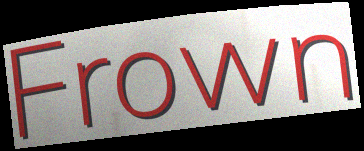
Frown